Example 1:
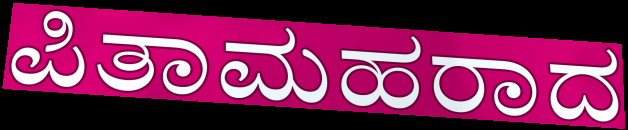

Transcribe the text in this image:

ಪಿತಾಮಹರಾದ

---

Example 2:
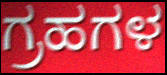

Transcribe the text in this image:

ಗ್ರಹಗಳ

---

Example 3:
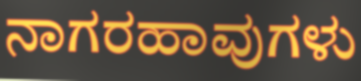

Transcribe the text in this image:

ನಾಗರಹಾವುಗಳು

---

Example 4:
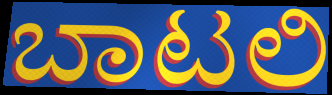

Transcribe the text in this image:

ಬಾಟಲಿ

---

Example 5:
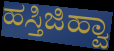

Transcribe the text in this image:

ಹಸ್ತಿಜಿಹ್ವಾ